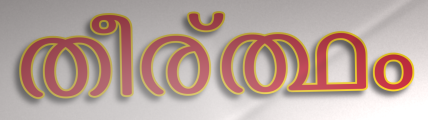
തീര്ത്ഥം